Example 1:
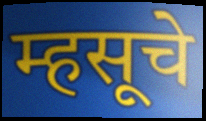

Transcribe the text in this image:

म्हसूचे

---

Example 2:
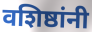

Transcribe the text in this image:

वशिष्ठांनी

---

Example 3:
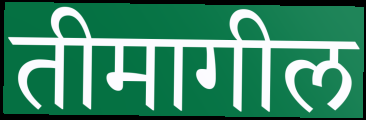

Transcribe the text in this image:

तीमागील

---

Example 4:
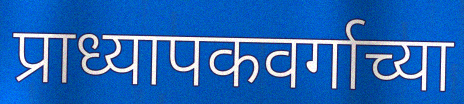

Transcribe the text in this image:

प्राध्यापकवर्गाच्या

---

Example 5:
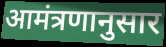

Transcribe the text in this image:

आमंत्रणानुसार